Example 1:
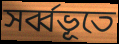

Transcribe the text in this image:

সর্ব্বভূতে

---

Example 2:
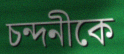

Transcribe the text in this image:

চন্দনীকে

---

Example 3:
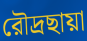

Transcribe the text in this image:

রৌদ্রছায়া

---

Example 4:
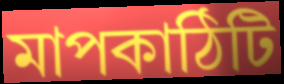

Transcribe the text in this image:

মাপকাঠিটি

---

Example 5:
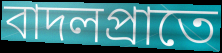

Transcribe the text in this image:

বাদলপ্রাতে